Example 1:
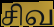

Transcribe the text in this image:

சிவ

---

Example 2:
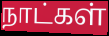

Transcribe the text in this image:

நாட்கள்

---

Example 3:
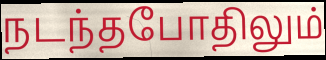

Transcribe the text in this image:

நடந்தபோதிலும்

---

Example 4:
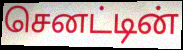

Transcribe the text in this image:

செனட்டின்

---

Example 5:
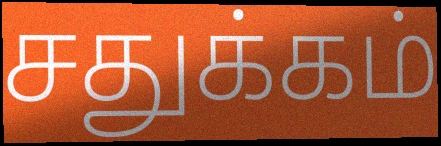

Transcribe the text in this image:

சதுக்கம்